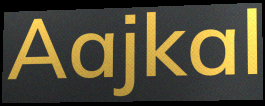
Aajkal